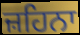
ਜ਼ਹਿਨਾ